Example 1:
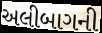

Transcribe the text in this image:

અલીબાગની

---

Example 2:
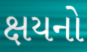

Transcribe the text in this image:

ક્ષયનો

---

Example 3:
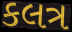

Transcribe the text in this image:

કલત્ર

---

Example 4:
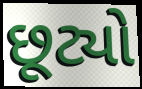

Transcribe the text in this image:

છૂટ્યો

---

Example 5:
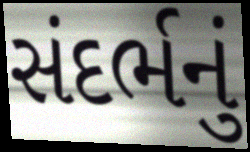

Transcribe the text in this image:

સંદર્ભનું